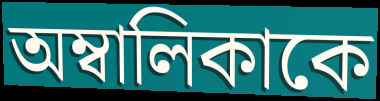
অম্বালিকাকে